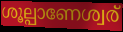
ശൂല്പാണേശ്വര്